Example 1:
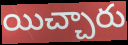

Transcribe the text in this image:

యిచ్చారు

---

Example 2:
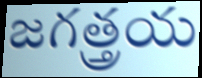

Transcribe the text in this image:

జగత్త్రయ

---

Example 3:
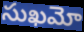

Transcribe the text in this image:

సుఖమో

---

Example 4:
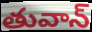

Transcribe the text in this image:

తువాన్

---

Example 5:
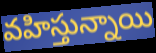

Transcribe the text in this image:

వహిస్తున్నాయి